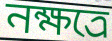
নক্ষত্রে